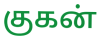
குகன்